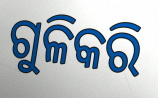
ଗୁଳିକରି